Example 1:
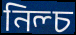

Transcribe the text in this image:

নিল্চ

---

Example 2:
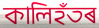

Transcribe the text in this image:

কালিহঁতৰ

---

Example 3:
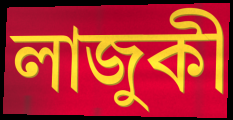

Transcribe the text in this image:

লাজুকী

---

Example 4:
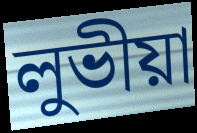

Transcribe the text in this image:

লুভীয়া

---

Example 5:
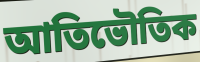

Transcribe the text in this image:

আতিভৌতিক